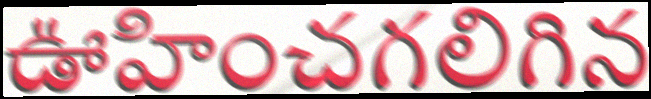
ఊహించగలిగిన